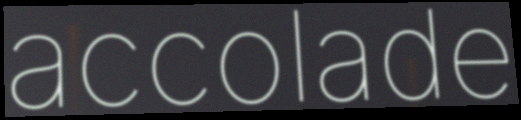
accolade